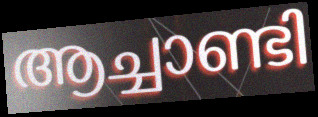
ആച്ചാണ്ടി